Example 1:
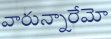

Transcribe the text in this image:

వారున్నారేమో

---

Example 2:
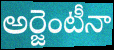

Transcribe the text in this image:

అర్జెంటీనా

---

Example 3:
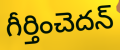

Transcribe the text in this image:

గీర్తించెదన్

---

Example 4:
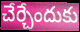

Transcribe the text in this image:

చేర్చేందుకు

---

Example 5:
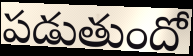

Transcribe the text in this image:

పడుతుందో